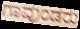
ಗಾವುಂಡರು